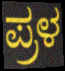
ಪ್ರಳ